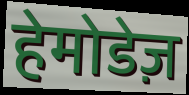
हेमोडेज़